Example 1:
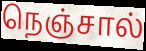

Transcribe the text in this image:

நெஞ்சால்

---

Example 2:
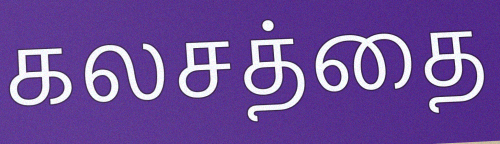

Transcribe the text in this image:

கலசத்தை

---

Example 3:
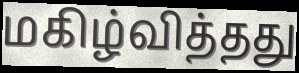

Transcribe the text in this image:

மகிழ்வித்தது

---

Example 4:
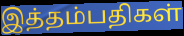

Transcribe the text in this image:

இத்தம்பதிகள்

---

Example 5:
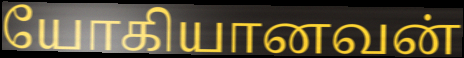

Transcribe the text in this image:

யோகியானவன்